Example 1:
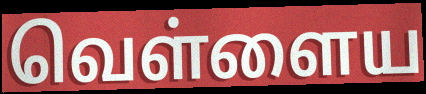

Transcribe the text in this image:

வெள்ளைய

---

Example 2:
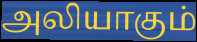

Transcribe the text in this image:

அலியாகும்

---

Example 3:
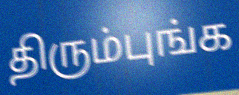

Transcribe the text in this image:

திரும்புங்க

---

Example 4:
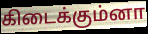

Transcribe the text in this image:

கிடைக்கும்னா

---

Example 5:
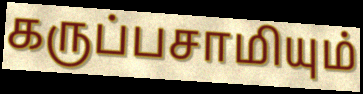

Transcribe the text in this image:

கருப்பசாமியும்